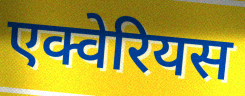
एक्वेरियस